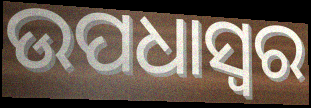
ଉପଧାସ୍ୱର